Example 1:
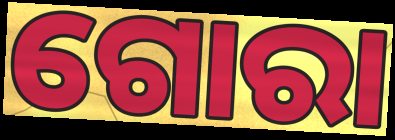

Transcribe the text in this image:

ଗୋରା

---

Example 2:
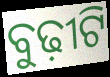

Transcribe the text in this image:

ବୁଢ଼ୀଟି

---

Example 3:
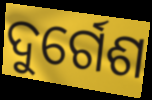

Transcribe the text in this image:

ଦୁର୍ଗେଶ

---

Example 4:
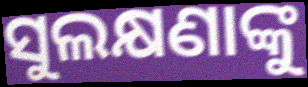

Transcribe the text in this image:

ସୁଲକ୍ଷଣାଙ୍କୁ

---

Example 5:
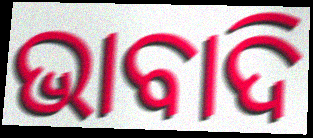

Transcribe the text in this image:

ଭାବାଦି